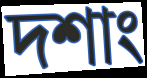
দশাং